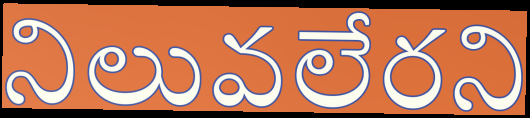
నిలువలేరని